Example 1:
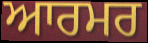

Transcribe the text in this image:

ਆਰਮਰ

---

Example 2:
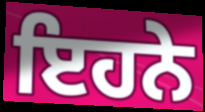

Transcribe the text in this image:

ਇਹਨੇ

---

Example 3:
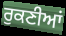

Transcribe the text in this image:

ਰੁਕਣੀਆਂ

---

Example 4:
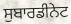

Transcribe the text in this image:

ਸੁਬਾਰਡੀਨੇਟ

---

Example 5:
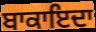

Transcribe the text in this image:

ਬਾਕਾਇਦਾ